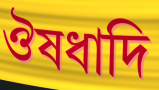
ঔষধাদি